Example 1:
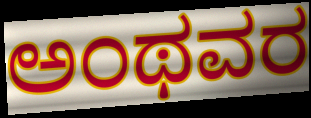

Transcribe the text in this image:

ಅಂಥವರ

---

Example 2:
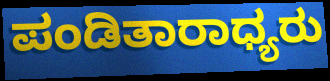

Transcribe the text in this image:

ಪಂಡಿತಾರಾಧ್ಯರು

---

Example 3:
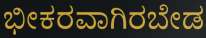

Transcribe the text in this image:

ಭೀಕರವಾಗಿರಬೇಡ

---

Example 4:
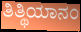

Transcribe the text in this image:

ತಿತ್ಥಿಯಾನಂ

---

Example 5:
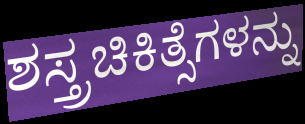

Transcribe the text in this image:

ಶಸ್ತ್ರಚಿಕಿತ್ಸೆಗಳನ್ನು